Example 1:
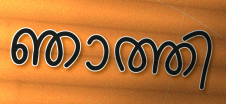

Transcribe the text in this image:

ഞാത്തി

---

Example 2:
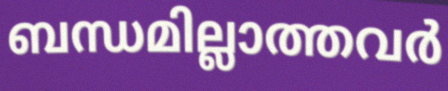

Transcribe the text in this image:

ബന്ധമില്ലാത്തവർ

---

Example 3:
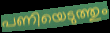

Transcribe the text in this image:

പണിയെടുത്തും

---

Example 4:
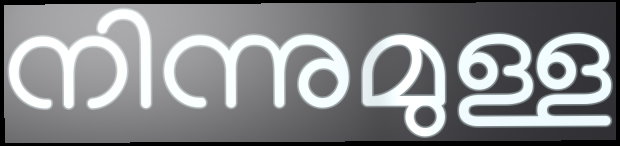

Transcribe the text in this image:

നിന്നുമുള്ള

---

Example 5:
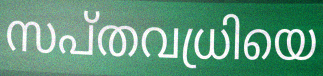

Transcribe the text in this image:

സപ്തവധ്രിയെ